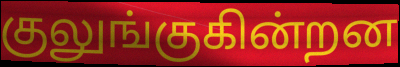
குலுங்குகின்றன